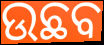
ଉଛବ